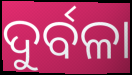
ଦୁର୍ବଳା